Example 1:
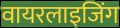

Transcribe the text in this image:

वायरलाइजिंग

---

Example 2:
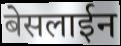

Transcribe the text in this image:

बेसलाईन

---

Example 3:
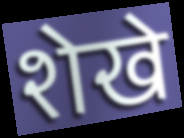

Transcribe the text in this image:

शेखे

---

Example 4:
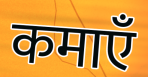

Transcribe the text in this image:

कमाएँ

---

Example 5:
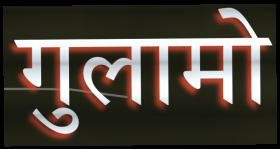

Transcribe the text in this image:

गुलामो